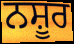
ਨਸ਼ੂਰ